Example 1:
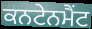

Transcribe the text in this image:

ਕਨਟੇਨਮੈਂਟ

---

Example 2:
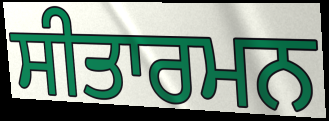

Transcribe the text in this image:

ਸੀਤਾਰਮਨ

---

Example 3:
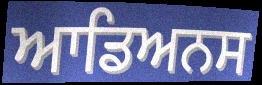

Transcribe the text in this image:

ਆਡਿਅਨਸ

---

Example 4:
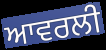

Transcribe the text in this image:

ਆਵਰਲੀ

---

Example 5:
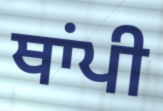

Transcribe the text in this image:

ਥਾਂਪੀ